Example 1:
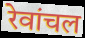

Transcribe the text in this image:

रेवांचल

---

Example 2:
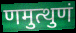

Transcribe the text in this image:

णमुत्थुणं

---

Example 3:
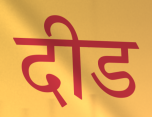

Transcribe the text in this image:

दीड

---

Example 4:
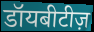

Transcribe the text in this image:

डॉयबीटीज़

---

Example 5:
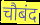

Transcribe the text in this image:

चौबंद